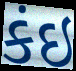
કંઇ